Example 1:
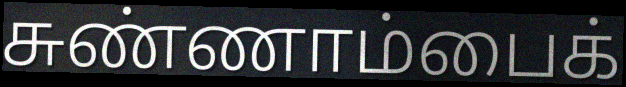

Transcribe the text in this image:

சுண்ணாம்பைக்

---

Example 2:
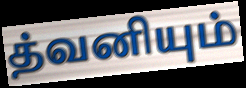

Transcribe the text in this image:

த்வனியும்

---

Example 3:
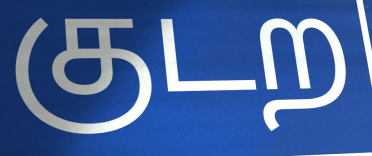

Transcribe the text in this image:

குடற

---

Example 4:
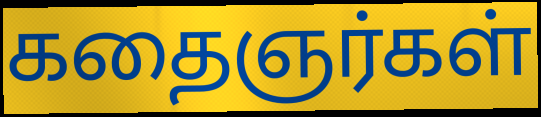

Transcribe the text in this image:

கதைஞர்கள்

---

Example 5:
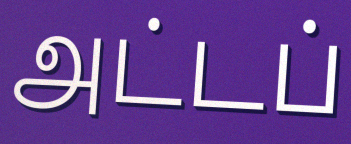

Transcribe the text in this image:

அட்டப்